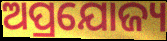
ଅପ୍ରଯୋଜ୍ୟ